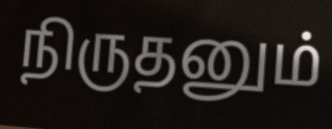
நிருதனும்